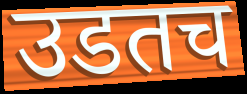
उडतच